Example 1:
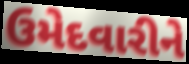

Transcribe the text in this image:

ઉમેદવારીને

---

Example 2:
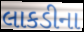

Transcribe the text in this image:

લાકડીના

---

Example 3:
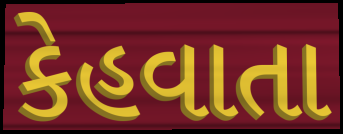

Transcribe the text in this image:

કેહવાતા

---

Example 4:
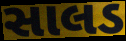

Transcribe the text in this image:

સાલડ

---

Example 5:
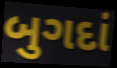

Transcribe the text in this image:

બુગદાં